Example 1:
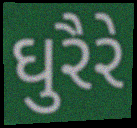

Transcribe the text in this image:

ઘુરૈરે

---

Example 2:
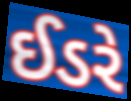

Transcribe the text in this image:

ઈડરે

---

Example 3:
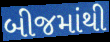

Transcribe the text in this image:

બીજમાંથી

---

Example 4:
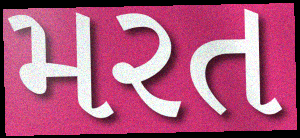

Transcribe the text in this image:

મરત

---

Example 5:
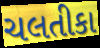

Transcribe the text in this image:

ચલતીકા